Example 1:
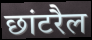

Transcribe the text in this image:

छांटरैल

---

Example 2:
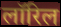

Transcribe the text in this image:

लॉरिल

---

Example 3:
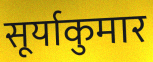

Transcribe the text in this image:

सूर्याकुमार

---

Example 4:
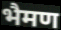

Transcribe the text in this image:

भैमण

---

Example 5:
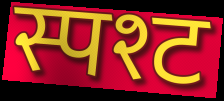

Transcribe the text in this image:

स्पश्ट